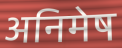
अनिमेष